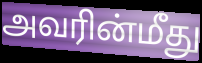
அவரின்மீது